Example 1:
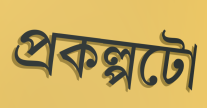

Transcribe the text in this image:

প্ৰকল্পটো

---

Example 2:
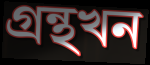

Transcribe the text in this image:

গ্ৰন্থখন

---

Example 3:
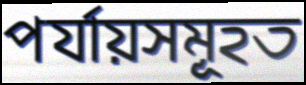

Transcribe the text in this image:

পৰ্যায়সমূহত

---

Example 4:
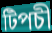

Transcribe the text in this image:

টিপচী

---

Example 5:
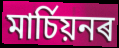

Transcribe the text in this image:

মাৰ্চিয়নৰ